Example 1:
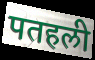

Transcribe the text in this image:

पतहली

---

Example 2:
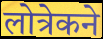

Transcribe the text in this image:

लोत्रेकने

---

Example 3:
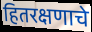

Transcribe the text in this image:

हितरक्षणाचे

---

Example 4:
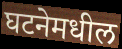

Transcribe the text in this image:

घटनेमधील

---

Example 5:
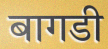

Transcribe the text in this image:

बागडी